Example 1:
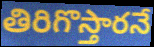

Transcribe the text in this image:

తిరిగొస్తారనే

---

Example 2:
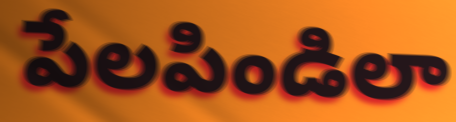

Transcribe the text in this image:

పేలపిండిలా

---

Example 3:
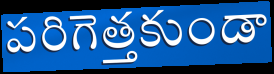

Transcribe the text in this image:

పరిగెత్తకుండా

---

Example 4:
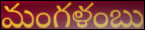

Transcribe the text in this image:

మంగళంబు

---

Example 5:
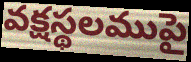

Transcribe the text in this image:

వక్షస్థలముపై